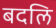
बदलि